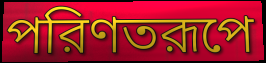
পরিণতরূপে